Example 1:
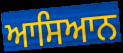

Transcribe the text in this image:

ਆਸਿਆਨ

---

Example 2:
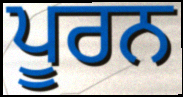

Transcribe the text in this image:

ਪੂਰਨ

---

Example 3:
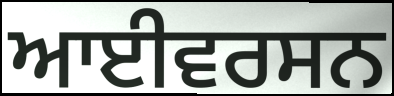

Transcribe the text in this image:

ਆਈਵਰਸਨ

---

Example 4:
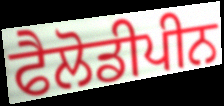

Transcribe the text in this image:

ਫੈਲੋਡੀਪੀਨ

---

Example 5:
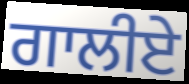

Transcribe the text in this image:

ਗਾਲੀਏ